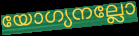
യോഗ്യനല്ലോ